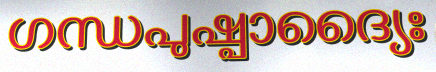
ഗന്ധപുഷ്പാദ്യൈഃ